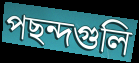
পছন্দগুলি